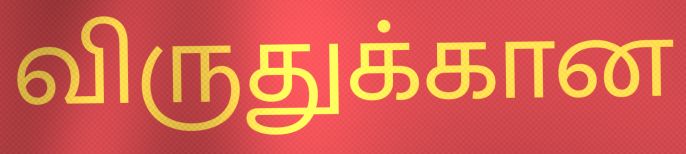
விருதுக்கான